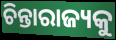
ଚିନ୍ତାରାଜ୍ୟକୁ